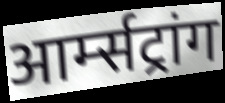
आर्म्सट्रांग